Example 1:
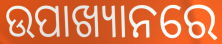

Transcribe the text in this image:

ଉପାଖ୍ୟାନରେ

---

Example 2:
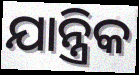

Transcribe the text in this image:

ଯାନ୍ତ୍ରିକ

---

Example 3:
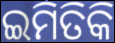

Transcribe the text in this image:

ଇମିତିକି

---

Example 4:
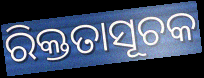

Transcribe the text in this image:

ରିକ୍ତତାସୂଚକ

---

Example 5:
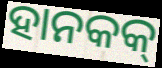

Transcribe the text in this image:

ହାନକକ୍